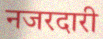
नजरदारी